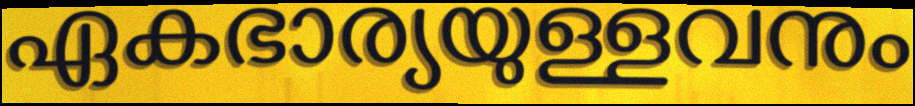
ഏകഭാര്യയുള്ളവനും